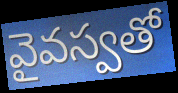
వైవస్వతో